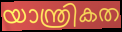
യാന്ത്രികത